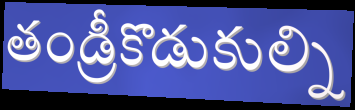
తండ్రీకొడుకుల్ని